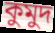
কুমুদ